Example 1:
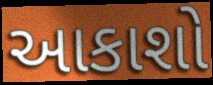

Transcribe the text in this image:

આકાશો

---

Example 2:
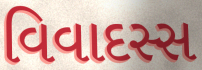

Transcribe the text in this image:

વિવાદસ્સ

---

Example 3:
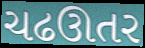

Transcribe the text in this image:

ચઢઊતર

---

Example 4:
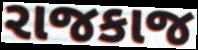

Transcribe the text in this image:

રાજકાજ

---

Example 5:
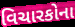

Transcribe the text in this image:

વિચારકોના